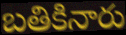
బతికినారు